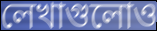
লেখাগুলোও